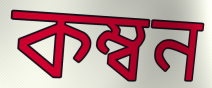
কম্বন